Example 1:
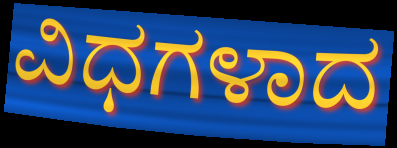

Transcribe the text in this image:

ವಿಧಗಳಾದ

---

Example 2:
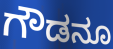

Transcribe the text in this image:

ಗೌಡನೂ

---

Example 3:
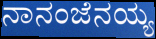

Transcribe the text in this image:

ನಾನಂಜೆನಯ್ಯ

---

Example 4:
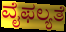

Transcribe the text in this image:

ವೈಫಲ್ಯತೆ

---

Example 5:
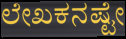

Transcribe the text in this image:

ಲೇಖಕನಷ್ಟೇ